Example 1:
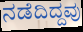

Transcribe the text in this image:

ನಡೆದಿದ್ದವು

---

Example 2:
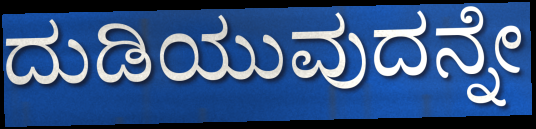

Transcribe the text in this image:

ದುಡಿಯುವುದನ್ನೇ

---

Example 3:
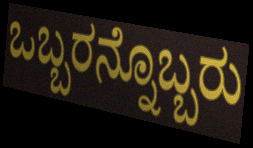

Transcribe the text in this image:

ಒಬ್ಬರನ್ನೊಬ್ಬರು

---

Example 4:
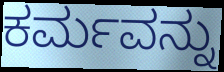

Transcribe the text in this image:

ಕರ್ಮವನ್ನು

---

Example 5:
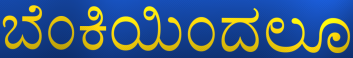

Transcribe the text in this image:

ಬೆಂಕಿಯಿಂದಲೂ